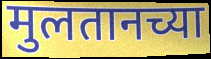
मुलतानच्या